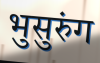
भुसुरुंग